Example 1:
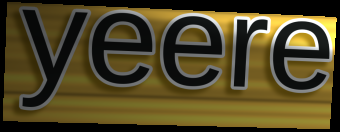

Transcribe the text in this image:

yeere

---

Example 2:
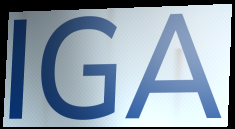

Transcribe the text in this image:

IGA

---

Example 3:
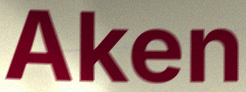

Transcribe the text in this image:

Aken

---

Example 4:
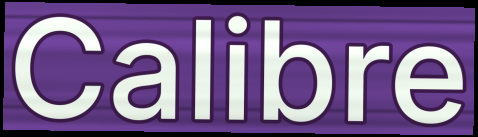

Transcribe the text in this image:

Calibre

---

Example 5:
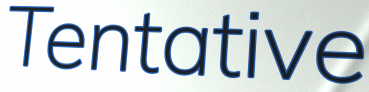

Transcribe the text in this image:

Tentative